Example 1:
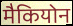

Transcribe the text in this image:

मैकियोन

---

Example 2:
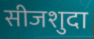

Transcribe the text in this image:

सीजशुदा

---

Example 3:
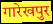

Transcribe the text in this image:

गारेखपुर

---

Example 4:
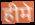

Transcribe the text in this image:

हीमे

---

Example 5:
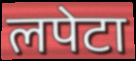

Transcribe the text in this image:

लपेटा